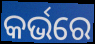
କର୍ଭରେ